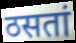
ठसतां